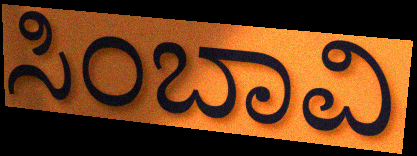
ಸಿಂಬಾವಿ